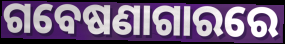
ଗବେଷଣାଗାରରେ